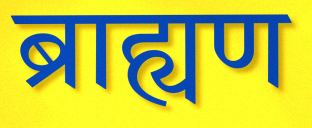
ब्राह्यण